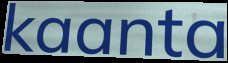
kaanta